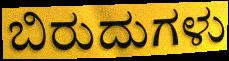
ಬಿರುದುಗಳು